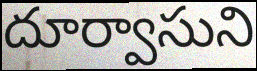
దూర్వాసుని